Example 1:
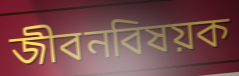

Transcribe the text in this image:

জীবনবিষয়ক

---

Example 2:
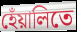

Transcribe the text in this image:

হেঁয়ালিতে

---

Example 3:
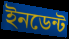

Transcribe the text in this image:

ইনডেন্ট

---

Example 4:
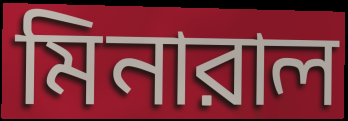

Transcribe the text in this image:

মিনারাল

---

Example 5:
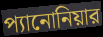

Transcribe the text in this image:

প্যানোনিয়ার